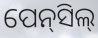
ପେନ୍‌ସିଲ୍